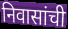
निवासांची